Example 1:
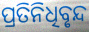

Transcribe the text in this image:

ପ୍ରତିନିଧିବୃନ୍ଦ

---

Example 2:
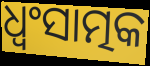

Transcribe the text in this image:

ଧ୍ଵଂସାତ୍ମକ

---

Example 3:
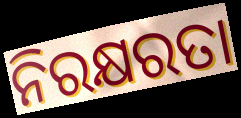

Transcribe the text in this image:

ନିରକ୍ଷରତା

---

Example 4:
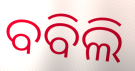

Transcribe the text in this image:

ବବିଲି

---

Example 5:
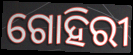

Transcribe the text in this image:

ଗୋହିରୀ